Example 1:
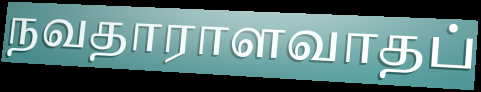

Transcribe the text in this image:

நவதாராளவாதப்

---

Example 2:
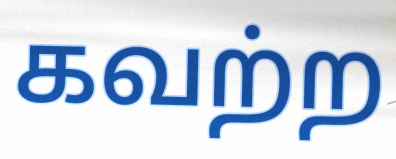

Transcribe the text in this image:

கவற்ற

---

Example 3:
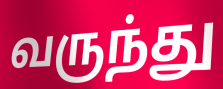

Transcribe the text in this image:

வருந்து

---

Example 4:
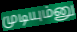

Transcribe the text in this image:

முடியும்னு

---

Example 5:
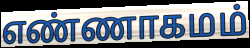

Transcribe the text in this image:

எண்ணாகமம்